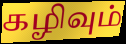
கழிவும்